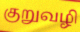
குறுவழி